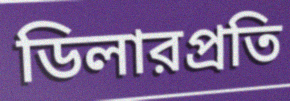
ডিলারপ্রতি